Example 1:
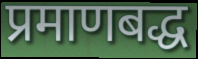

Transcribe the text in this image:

प्रमाणबद्ध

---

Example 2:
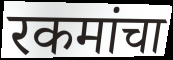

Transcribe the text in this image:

रकमांचा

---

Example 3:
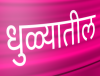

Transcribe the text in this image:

धुळ्यातील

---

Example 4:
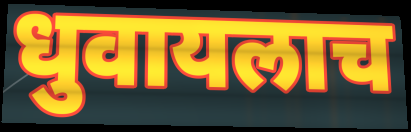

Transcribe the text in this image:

धुवायलाच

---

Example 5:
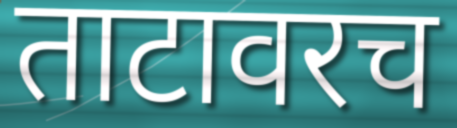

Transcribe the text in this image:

ताटावरच